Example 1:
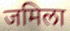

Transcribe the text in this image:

जमिला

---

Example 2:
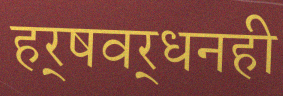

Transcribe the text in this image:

हर्षवर्धनही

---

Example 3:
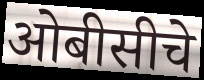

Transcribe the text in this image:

ओबीसीचे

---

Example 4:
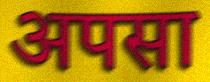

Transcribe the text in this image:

अपसा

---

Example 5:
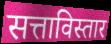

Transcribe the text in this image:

सत्ताविस्तार